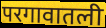
परगावातली